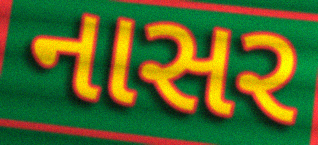
નાસર